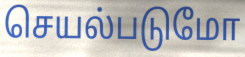
செயல்படுமோ